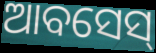
ଆବସେସ୍